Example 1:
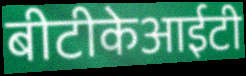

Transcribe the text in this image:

बीटीकेआईटी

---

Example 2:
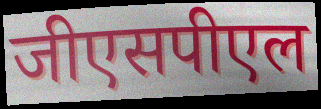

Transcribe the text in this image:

जीएसपीएल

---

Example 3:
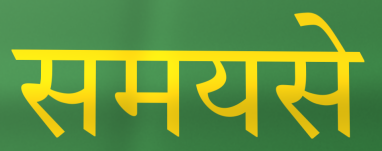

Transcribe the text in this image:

समयसे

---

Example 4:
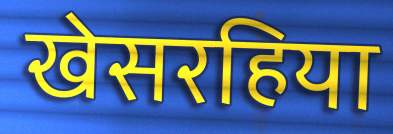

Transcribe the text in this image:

खेसरहिया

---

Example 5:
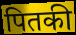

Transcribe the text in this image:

पितकी